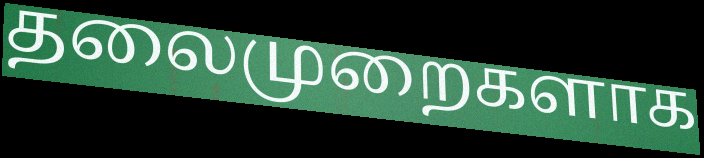
தலைமுறைகளாக